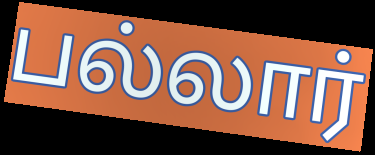
பல்லார்